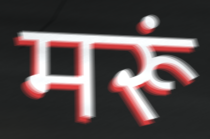
मरूं